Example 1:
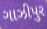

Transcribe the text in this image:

ગાઝીપુર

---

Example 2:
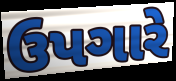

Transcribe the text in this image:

ઉપગારે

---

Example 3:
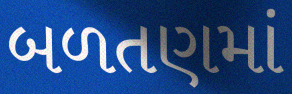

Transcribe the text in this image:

બળતણમાં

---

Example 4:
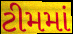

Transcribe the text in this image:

ટીમમાં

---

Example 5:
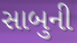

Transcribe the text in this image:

સાબુની